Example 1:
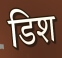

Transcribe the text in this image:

डिश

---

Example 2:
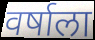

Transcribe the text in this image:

वर्षाला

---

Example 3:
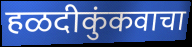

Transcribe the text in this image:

हळदीकुंकवाचा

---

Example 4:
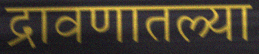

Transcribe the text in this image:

द्रावणातल्या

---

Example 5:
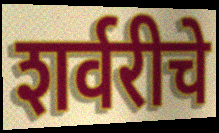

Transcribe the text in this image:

शर्वरीचे